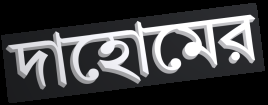
দাহোমের